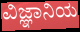
ವಿಜ್ಞಾನಿಯ